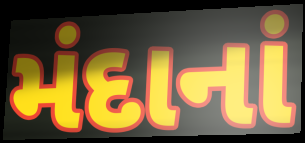
મંદાનાં